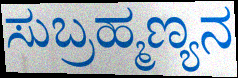
ಸುಬ್ರಹ್ಮಣ್ಯನ